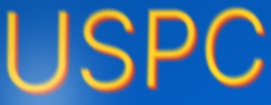
USPC